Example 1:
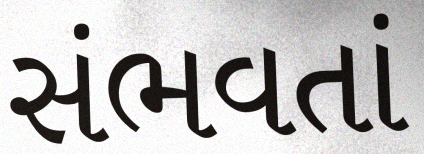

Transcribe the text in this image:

સંભવતાં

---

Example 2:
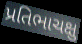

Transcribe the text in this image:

પ્રતિભાચક્ષુ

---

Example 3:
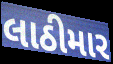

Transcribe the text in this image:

લાઠીમાર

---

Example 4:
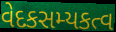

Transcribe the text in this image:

વેદકસમ્યકત્વ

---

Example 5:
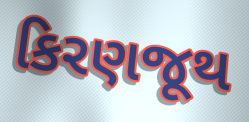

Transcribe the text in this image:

કિરણજૂથ